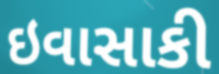
ઇવાસાકી